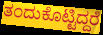
ತಂದುಕೊಟ್ಟಿದ್ದರೆ